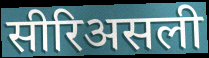
सीरिअसली